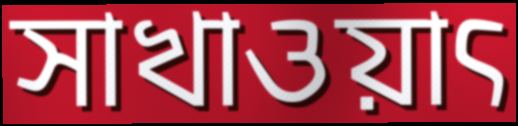
সাখাওয়াৎ